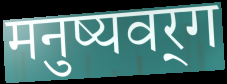
मनुष्यवर्ग